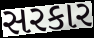
સરકાર